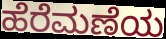
ಹೆರೆಮಣೆಯ